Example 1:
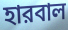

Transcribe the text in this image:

হারবাল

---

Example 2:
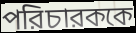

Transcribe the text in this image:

পরিচারককে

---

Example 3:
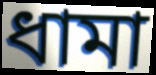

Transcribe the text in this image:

ধামা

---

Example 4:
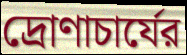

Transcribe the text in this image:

দ্রোণাচার্যের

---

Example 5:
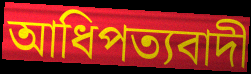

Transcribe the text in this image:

আধিপত্যবাদী